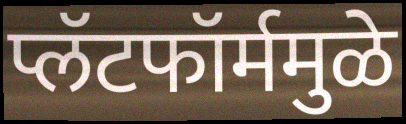
प्लॅटफॉर्ममुळे